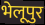
भेलूपुर